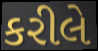
કરીલે